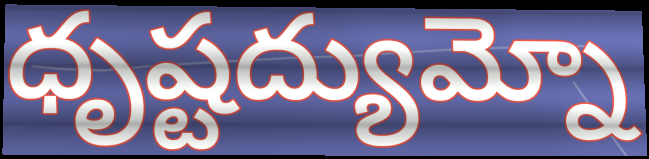
ధృష్టద్యుమ్నో